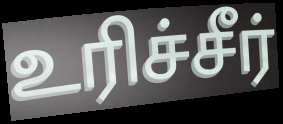
உரிச்சீர்